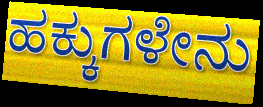
ಹಕ್ಕುಗಳೇನು